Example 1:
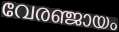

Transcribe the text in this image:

വേരഞ്ജായം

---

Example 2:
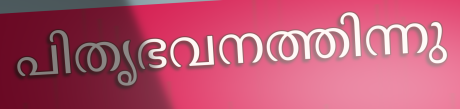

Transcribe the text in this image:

പിതൃഭവനത്തിന്നു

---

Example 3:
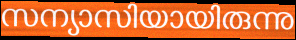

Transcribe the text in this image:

സന്യാസിയായിരുന്നു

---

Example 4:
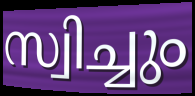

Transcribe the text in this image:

സ്വിച്ചും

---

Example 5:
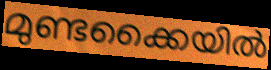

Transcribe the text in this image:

മുണ്ടക്കൈയിൽ